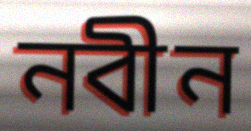
নবীন